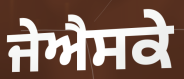
ਜੇਐਸਕੇ